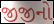
જીજીનો